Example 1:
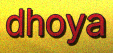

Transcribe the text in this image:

dhoya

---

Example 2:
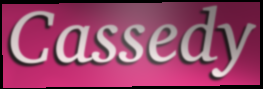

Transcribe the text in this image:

Cassedy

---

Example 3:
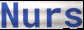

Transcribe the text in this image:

Nurs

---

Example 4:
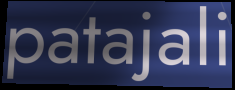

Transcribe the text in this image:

patajali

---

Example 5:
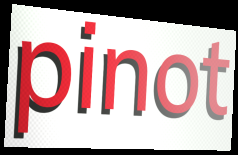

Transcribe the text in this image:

pinot